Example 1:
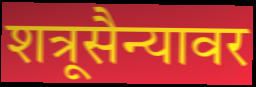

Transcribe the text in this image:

शत्रूसैन्यावर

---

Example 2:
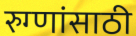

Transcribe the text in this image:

रुग्णांसाठी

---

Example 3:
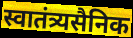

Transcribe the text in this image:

स्वातंत्र्यसैनिक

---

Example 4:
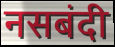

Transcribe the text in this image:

नसबंदी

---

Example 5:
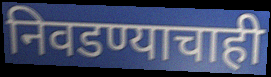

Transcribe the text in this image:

निवडण्याचाही